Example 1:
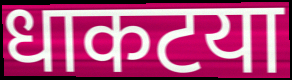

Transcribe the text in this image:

धाकटया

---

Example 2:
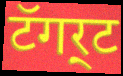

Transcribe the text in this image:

टॅगर्ट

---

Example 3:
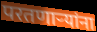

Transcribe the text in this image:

परतणाऱ्यांना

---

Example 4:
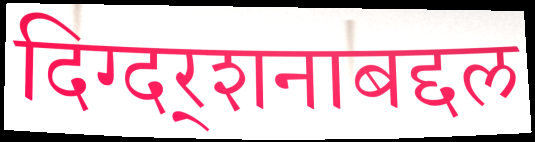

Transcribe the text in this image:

दिग्दर्शनाबद्दल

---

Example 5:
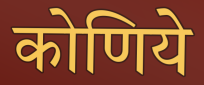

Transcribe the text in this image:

कोणिये